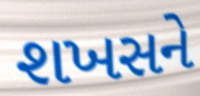
શખસને